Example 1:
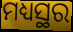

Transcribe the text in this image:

ମଧ୍ୟସ୍ଥର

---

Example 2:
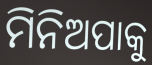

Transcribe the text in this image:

ମିନିଅପାକୁ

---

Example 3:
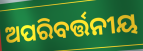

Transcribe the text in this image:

ଅପରିବର୍ତ୍ତନୀୟ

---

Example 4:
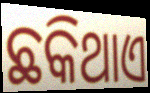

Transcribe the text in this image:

ଛକିଥାଏ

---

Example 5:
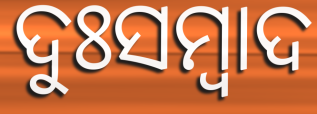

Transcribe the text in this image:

ଦୁଃସମ୍ବାଦ